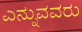
ಎನ್ನುವವರು